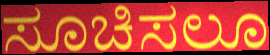
ಸೂಚಿಸಲೂ